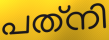
പത്‌നി